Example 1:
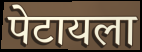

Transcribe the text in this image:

पेटायला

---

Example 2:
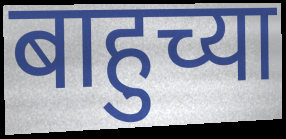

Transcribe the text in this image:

बाहुच्या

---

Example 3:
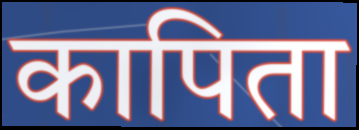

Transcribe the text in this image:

कापिता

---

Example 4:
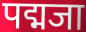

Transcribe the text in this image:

पद्मजा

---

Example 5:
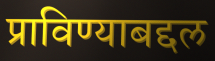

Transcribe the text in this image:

प्राविण्याबद्दल